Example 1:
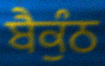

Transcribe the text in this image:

ਬੈਕੁੰਠ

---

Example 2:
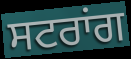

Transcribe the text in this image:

ਸਟਰਾਂਗ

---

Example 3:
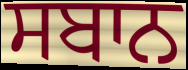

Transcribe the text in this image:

ਸਬਾਨ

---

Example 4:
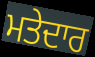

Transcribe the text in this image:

ਮਤੇਦਾਰ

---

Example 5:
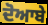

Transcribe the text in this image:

ਦੋਆਬੇ